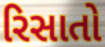
રિસાતો